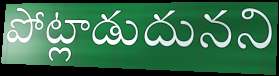
పోట్లాడుదునని